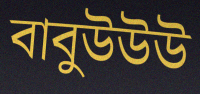
বাবুউউউ